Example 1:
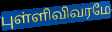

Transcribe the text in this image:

புள்ளிவிவரமே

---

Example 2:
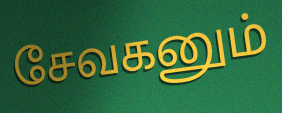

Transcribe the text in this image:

சேவகனும்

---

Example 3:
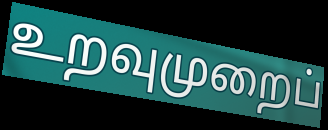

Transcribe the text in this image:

உறவுமுறைப்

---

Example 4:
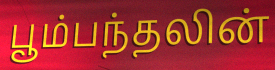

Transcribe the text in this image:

பூம்பந்தலின்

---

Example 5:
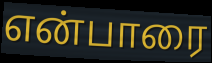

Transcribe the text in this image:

என்பாரை